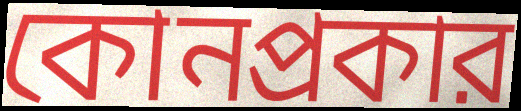
কোনপ্রকার